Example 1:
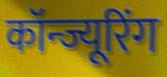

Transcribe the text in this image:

कॉन्ज्यूरिंग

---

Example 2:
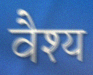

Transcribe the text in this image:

वैश्य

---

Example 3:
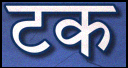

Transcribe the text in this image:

टक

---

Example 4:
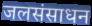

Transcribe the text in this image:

जलसंसाधन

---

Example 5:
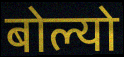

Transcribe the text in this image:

बोल्यो